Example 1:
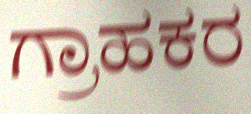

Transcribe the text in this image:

ಗ್ರಾಹಕರ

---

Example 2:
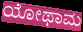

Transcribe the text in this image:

ಯೋಥಾಮ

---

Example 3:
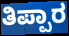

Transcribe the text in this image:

ತಿಪ್ಪಾರ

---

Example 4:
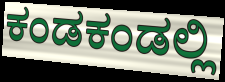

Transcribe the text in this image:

ಕಂಡಕಂಡಲ್ಲಿ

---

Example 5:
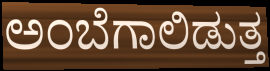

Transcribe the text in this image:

ಅಂಬೆಗಾಲಿಡುತ್ತ